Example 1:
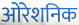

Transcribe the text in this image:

ओरेशनिक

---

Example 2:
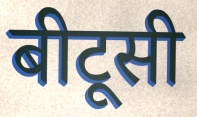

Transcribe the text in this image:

बीटूसी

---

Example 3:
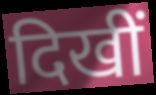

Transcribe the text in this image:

दिखीं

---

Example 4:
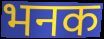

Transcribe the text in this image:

भनक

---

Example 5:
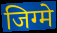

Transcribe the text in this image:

जिग्मे